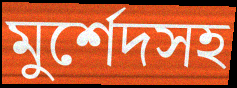
মুর্শেদসহ